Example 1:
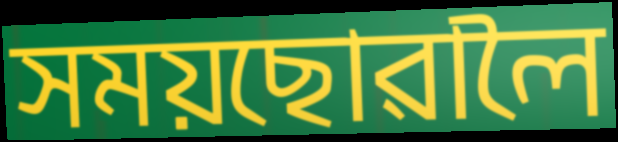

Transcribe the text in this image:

সময়ছোৱালৈ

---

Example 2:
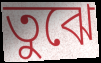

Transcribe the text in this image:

তুঝে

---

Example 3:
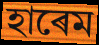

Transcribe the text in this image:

হাৰেম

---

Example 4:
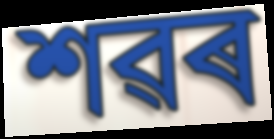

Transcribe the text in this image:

শৱৰ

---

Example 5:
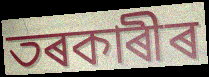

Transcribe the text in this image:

তৰকাৰীৰ